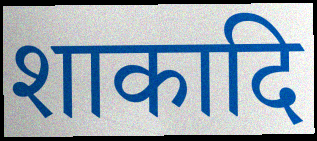
शाकादि